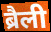
ब्रैली